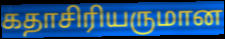
கதாசிரியருமான